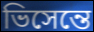
ভিসেন্তে